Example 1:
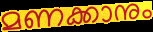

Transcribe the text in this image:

മണക്കാനും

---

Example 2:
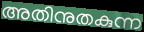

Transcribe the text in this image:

അതിനുതകുന്ന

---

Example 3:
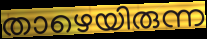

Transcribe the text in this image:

താഴെയിരുന്ന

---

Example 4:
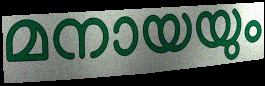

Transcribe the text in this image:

മനായയും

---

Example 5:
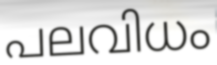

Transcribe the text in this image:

പലവിധം